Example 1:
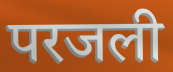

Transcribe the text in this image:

परजली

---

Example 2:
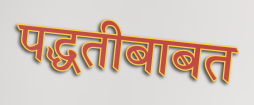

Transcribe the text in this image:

पद्धतीबाबत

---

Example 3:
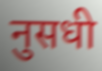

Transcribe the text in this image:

नुसधी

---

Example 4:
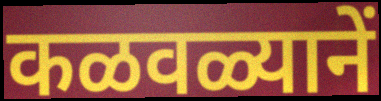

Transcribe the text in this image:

कळवळ्यानें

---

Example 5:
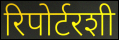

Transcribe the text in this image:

रिपोर्टरशी